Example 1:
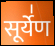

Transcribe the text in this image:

सूर्ये॑ण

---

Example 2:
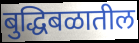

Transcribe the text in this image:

बुद्धिबळातील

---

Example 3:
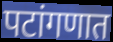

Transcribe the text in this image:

पटांगणात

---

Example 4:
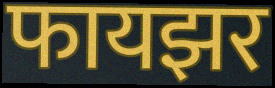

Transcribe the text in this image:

फायझर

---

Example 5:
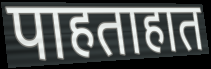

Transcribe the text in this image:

पाहताहात